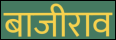
बाजीराव